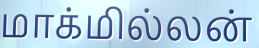
மாக்மில்லன்